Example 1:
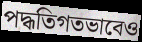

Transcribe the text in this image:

পদ্ধতিগতভাবেও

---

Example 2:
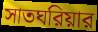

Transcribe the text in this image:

সাতঘরিয়ার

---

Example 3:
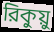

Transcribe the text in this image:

রিকুয়ু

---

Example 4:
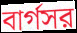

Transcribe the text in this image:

বার্গসর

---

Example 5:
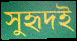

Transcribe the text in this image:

সুহৃদই